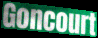
Goncourt